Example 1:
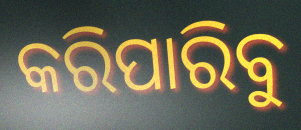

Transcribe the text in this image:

କରିପାରିବୁ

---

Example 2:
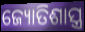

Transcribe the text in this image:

ଜ୍ୟୋତିଶାସ୍ତ୍ର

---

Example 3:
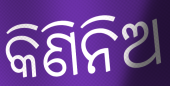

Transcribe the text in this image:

କିଣିନିଅ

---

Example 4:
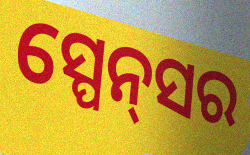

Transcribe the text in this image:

ସ୍ପେନ୍‌ସର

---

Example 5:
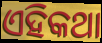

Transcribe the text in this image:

ଏହିକଥା